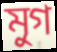
মুগ